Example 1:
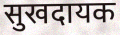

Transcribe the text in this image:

सुखदायक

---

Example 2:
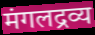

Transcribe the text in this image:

मंगलद्रव्य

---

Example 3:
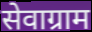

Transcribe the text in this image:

सेवाग्राम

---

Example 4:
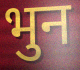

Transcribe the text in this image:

भुन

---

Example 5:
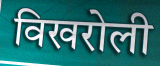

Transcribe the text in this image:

विखरोली